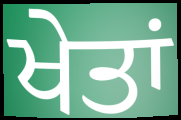
ਖੇਤਾਂ